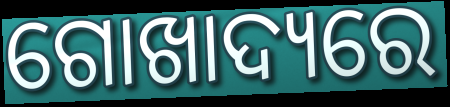
ଗୋଖାଦ୍ୟରେ